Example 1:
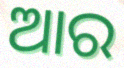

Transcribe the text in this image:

ଆର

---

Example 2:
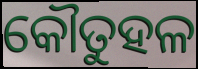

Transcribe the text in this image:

କୌତୁହଳ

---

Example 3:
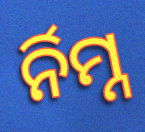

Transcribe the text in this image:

ର୍ନିମ୍ନ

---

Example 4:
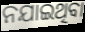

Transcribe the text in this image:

ନଯାଇଥିବା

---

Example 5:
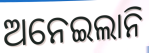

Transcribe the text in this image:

ଅନେଇଲାନି